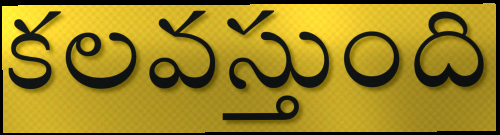
కలవస్తుంది